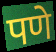
पणे